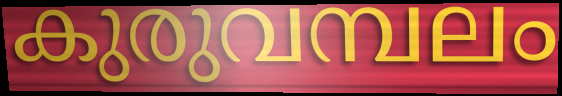
കുരുവമ്പലം